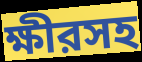
ক্ষীরসহ